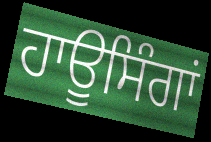
ਹਾਊਸਿੰਗਾਂ